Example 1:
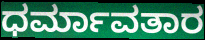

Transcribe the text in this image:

ಧರ್ಮಾವತಾರ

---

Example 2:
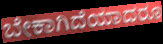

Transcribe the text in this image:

ಬೇಕಾಗಿದೆಯಾದರೂ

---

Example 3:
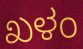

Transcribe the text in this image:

ಖಳಂ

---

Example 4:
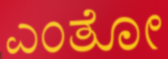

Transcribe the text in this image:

ಎಂತೋ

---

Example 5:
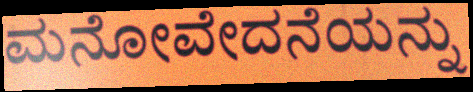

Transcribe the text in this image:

ಮನೋವೇದನೆಯನ್ನು